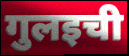
गुलइची